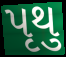
પૃથુ